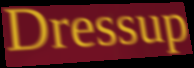
Dressup